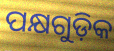
ପକ୍ଷଗୁଡ଼ିକ